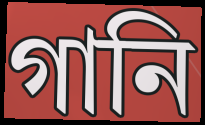
গানি